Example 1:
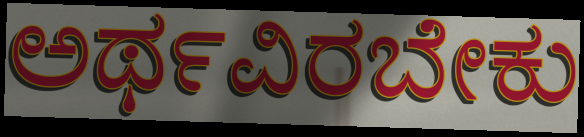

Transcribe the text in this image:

ಅರ್ಥವಿರಬೇಕು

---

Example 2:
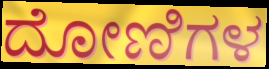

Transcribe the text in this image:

ದೋಣಿಗಳ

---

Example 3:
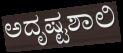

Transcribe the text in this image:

ಅದೃಷ್ಟಶಾಲಿ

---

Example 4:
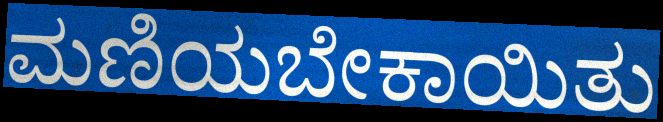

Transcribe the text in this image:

ಮಣಿಯಬೇಕಾಯಿತು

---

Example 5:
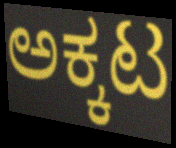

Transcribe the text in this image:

ಅಕ್ಕಟ